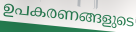
ഉപകരണങ്ങളുടെ